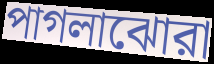
পাগলাঝোরা